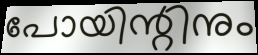
പോയിന്റിനും